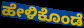
ಹೇಳಿಕೊಂಡೆ